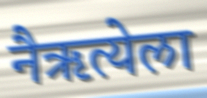
नैऋत्येला